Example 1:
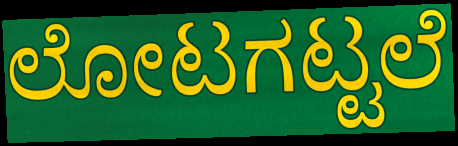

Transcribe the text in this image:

ಲೋಟಗಟ್ಟಲೆ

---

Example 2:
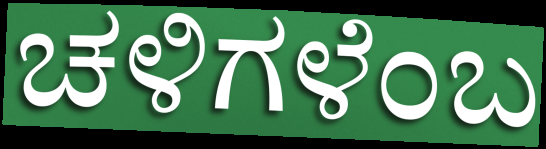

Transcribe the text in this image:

ಚಳಿಗಳೆಂಬ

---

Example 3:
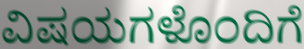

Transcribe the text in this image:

ವಿಷಯಗಳೊಂದಿಗೆ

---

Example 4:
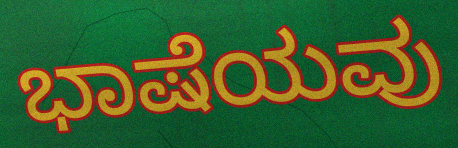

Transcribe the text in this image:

ಭಾಷೆಯವು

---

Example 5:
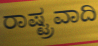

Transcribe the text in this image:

ರಾಷ್ಟ್ರವಾದಿ